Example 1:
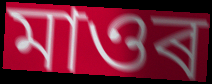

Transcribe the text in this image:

মাওৰ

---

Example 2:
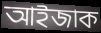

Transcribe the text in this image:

আইজাক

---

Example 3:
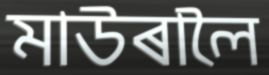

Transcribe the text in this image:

মাউৰালৈ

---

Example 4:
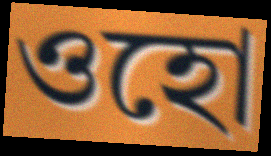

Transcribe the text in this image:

ওহো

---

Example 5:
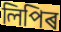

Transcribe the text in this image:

লিপিৰ